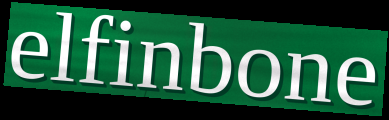
elfinbone